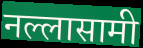
नल्लासामी